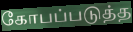
கோபப்படுத்த